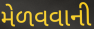
મેળવવાની